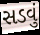
સડવું